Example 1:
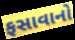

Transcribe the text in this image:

ફસાવાનો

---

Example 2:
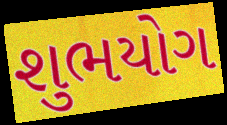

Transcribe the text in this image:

શુભયોગ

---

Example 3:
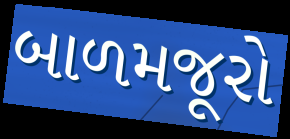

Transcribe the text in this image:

બાળમજૂરો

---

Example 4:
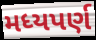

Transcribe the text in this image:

મધ્યપર્ણ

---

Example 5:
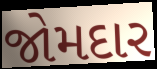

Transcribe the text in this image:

જોમદાર